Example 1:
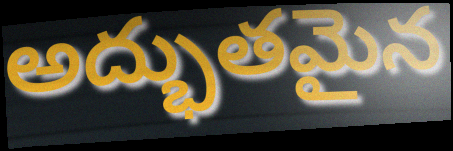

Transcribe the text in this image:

అద్భుతమైన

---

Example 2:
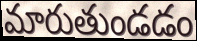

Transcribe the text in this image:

మారుతుండడం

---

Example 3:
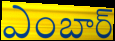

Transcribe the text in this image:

ఎంబార్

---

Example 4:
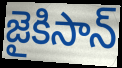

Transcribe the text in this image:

జైకిసాన్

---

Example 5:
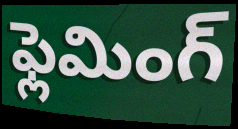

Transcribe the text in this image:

ఫ్లెమింగ్